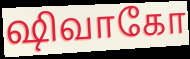
ஷிவாகோ